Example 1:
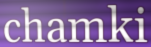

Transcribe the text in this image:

chamki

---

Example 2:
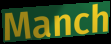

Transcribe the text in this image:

Manch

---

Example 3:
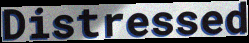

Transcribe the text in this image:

Distressed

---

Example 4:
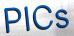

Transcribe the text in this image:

PICs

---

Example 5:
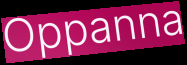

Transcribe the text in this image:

Oppanna